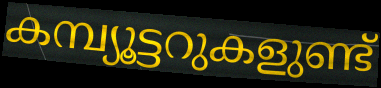
കമ്പ്യൂട്ടറുകളുണ്ട്